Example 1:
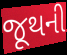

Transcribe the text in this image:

જૂથની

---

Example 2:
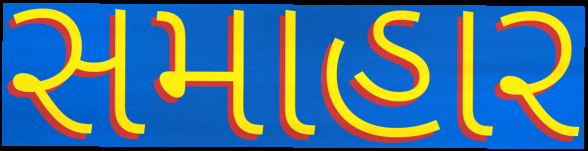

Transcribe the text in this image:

સમાહાર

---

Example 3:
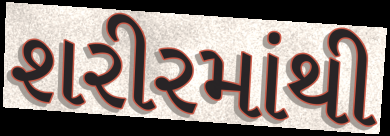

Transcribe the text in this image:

શરીરમાંથી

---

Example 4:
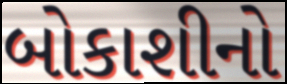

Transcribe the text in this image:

બોકાશીનો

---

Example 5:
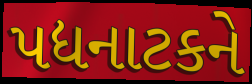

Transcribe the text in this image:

પદ્યનાટકને